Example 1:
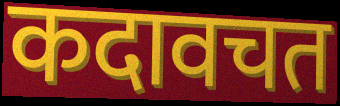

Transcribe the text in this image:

कदावचत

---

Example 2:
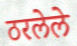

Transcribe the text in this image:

ठरलेले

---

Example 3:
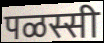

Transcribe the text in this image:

पळस्सी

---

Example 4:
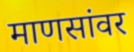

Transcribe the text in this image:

माणसांवर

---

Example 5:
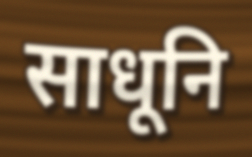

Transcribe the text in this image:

साधूनि